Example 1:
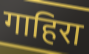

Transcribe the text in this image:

गाहिरा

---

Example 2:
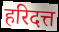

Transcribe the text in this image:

हरिदत्त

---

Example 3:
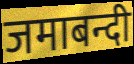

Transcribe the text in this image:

जमाबन्दी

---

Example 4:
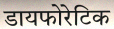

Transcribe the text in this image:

डायफोरेटिक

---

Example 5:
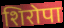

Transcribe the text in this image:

शिरोपा